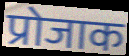
प्रोजाक